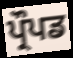
ਪ੍ਰੌਪਡ